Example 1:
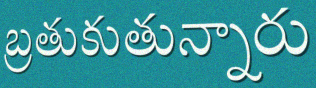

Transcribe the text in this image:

బ్రతుకుతున్నారు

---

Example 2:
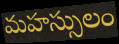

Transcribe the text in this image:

మహస్సులం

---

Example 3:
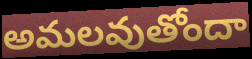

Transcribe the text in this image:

అమలవుతోందా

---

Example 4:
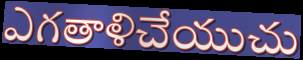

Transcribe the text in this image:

ఎగతాళిచేయుచు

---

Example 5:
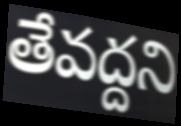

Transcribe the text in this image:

తేవద్దని